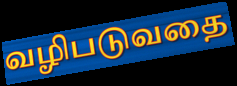
வழிபடுவதை